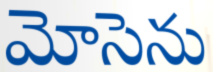
మోసెను